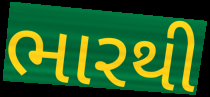
ભારથી